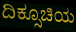
ದಿಕ್ಸೂಚಿಯ